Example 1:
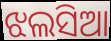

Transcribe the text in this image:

ଝଲସିଆ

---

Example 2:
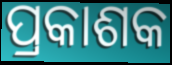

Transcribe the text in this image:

ପ୍ରକାଶକ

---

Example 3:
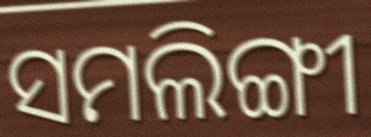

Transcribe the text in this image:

ସମଲିଙ୍ଗୀ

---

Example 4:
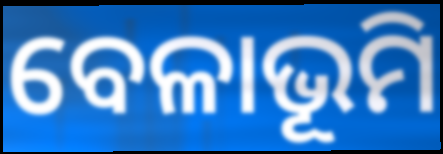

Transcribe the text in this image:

ବେଳାଭୂମି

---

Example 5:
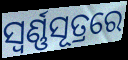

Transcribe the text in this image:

ସ୍ୱର୍ଣ୍ଣସୂତ୍ରରେ